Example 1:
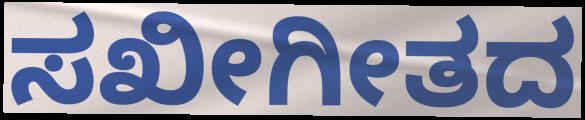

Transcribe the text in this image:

ಸಖೀಗೀತದ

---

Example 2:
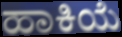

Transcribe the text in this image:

ಹಾಕಿಯೆ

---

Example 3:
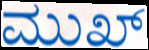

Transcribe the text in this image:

ಮುಖ್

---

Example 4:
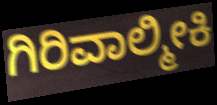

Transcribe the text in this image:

ಗಿರಿವಾಲ್ಮೀಕಿ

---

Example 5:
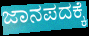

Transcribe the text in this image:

ಜಾನಪದಕ್ಕೆ